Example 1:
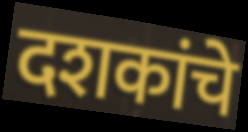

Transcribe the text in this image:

दशकांचे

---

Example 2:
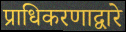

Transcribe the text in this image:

प्राधिकरणाद्वारे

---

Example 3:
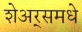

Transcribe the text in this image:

शेअर्समधे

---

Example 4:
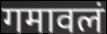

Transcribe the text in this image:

गमावलं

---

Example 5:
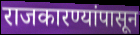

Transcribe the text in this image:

राजकारण्यांपासून